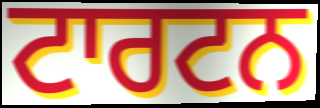
ਟਾਰਟਨ